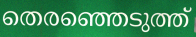
തെരഞ്ഞെടുത്ത്